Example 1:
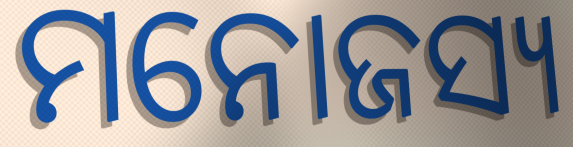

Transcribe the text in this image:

ମନୋଜସ୍ୟ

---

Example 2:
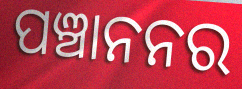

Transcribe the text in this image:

ପଞ୍ଚାନନର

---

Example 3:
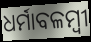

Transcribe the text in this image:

ଧର୍ମାବଳମ୍ବୀ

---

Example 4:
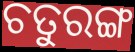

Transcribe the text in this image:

ଚତୁରଙ୍ଗ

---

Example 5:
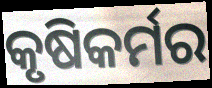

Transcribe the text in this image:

କୃଷିକର୍ମର